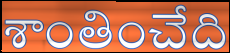
శాంతించేది